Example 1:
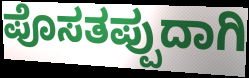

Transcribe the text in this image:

ಪೊಸತಪ್ಪುದಾಗಿ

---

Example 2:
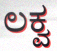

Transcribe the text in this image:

ಲಕ್ವ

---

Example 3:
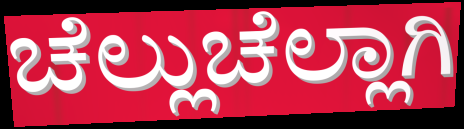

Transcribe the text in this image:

ಚೆಲ್ಲುಚೆಲ್ಲಾಗಿ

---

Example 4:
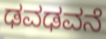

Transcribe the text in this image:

ಢವಢವನೆ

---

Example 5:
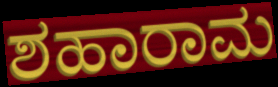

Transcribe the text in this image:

ಶಹಾರಾಮ